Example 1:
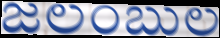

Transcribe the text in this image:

జలంబుల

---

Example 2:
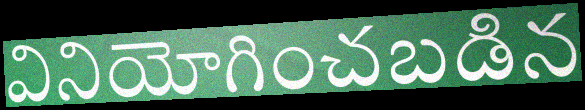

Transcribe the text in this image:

వినియోగించబడిన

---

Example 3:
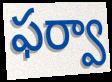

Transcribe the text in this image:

ఫర్వా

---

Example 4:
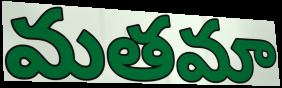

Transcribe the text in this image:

మతమా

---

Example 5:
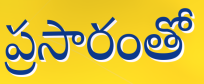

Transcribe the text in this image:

ప్రసారంతో